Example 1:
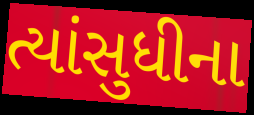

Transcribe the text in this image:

ત્યાંસુધીના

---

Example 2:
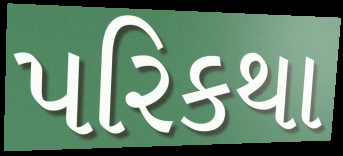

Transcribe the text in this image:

પરિકથા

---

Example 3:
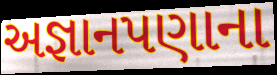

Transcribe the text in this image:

અજ્ઞાનપણાના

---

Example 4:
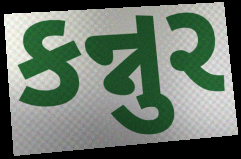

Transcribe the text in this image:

કન્નુર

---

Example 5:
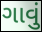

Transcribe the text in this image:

ગાવું